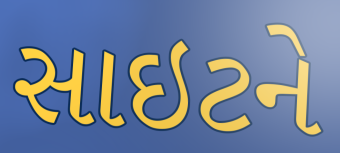
સાઇટને